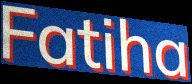
Fatiha